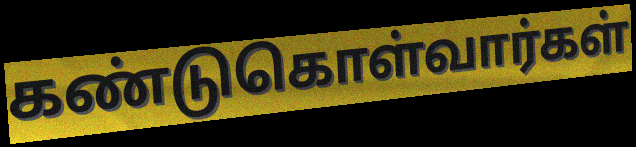
கண்டுகொள்வார்கள்